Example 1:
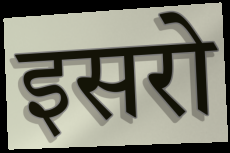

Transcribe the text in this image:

इसरो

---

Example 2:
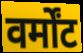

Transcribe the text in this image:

वर्मोंट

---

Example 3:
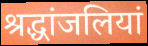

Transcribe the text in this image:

श्रद्धांजलियां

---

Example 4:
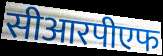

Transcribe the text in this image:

सीआरपीएफ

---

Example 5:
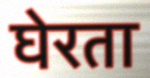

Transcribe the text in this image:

घेरता